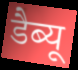
डैब्यू